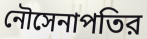
নৌসেনাপতির